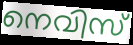
നെവിസ്